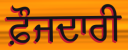
ਫ਼ੌਜਦਾਰੀ